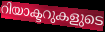
റിയാക്ടറുകളുടെ